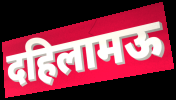
दहिलामऊ